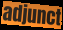
adjunct